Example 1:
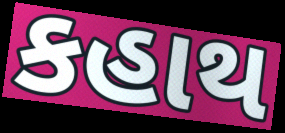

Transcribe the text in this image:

કહાથ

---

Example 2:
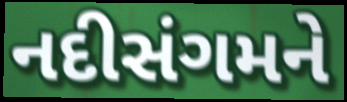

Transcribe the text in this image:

નદીસંગમને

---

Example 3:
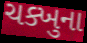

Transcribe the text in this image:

ચક્ખુના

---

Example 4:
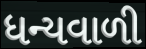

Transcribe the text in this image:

ધન્યવાળી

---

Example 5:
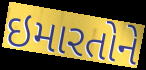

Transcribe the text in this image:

ઇમારતોને